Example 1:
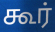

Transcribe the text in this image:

கூர்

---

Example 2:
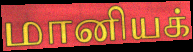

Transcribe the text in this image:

மானியக்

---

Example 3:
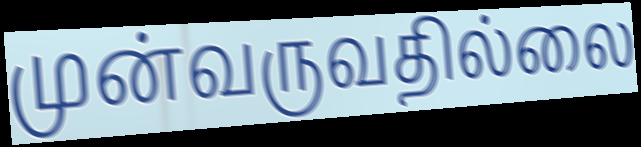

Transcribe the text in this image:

முன்வருவதில்லை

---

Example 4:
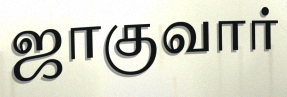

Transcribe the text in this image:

ஜாகுவார்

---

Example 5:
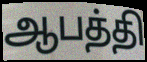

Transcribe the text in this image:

ஆபத்தி